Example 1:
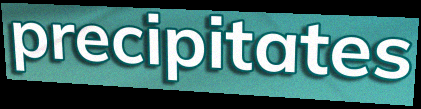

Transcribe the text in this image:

precipitates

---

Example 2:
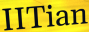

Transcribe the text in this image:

IITian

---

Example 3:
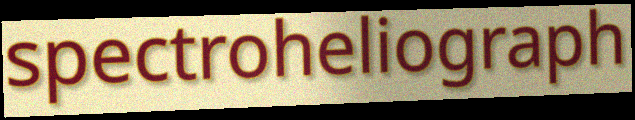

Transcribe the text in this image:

spectroheliograph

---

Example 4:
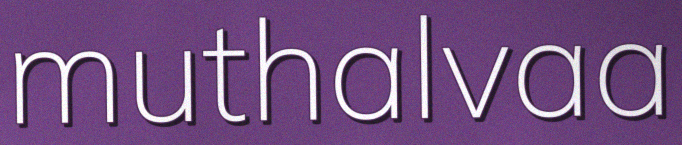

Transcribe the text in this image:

muthalvaa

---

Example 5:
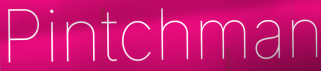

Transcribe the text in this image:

Pintchman